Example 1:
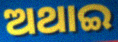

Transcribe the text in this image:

ଅଥାଇ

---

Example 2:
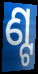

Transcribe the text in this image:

ଣ୍ଟ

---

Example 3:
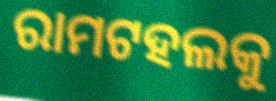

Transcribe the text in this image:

ରାମଟହଲକୁ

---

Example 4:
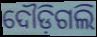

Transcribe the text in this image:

ଦୌଡ଼ିଗଲି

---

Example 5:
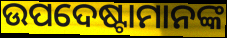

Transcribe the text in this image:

ଉପଦେଷ୍ଟାମାନଙ୍କ